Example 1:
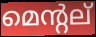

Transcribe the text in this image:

മെന്റല്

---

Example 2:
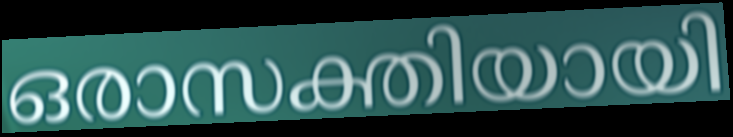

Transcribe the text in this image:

ഒരാസക്തിയായി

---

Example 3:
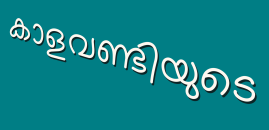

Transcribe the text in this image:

കാളവണ്ടിയുടെ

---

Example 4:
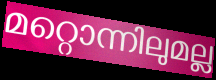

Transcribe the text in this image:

മറ്റൊന്നിലുമല്ല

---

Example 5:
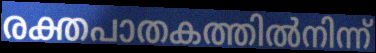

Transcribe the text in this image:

രക്തപാതകത്തിൽനിന്ന്